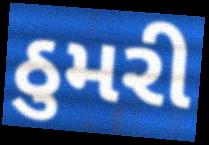
ઠુમરી